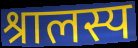
श्रालस्य